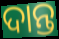
ଦାନ୍ତ